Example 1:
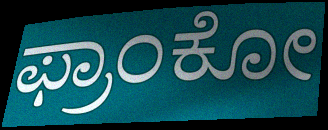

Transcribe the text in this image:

ಫ್ರಾಂಕೋ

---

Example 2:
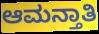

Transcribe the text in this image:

ಆಮನ್ತಾತಿ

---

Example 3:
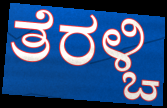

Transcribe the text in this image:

ತೆರಳ್ಚಿ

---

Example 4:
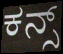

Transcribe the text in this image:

ಕನ್ಸ್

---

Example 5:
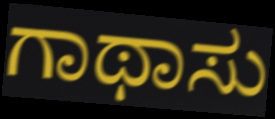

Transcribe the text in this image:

ಗಾಥಾಸು